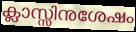
ക്ലാസ്സിനുശേഷം